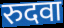
रुदवा